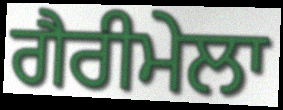
ਗੈਰੀਮੇਲਾ